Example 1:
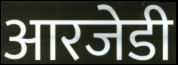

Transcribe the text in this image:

आरजेडी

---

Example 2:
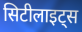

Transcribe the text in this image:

सिटीलाइट्स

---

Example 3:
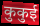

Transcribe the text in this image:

कुकुई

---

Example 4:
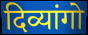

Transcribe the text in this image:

दिव्यांगो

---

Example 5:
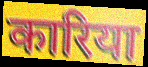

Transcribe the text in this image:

कारिया